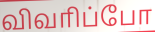
விவரிப்போ